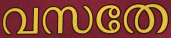
വസതേ